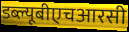
डब्ल्यूबीएचआरसी